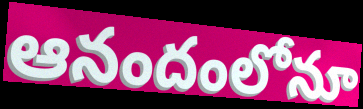
ఆనందంలోనూ